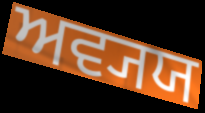
ਅਵ੍ਯਯ